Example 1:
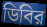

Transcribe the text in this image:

ডিবির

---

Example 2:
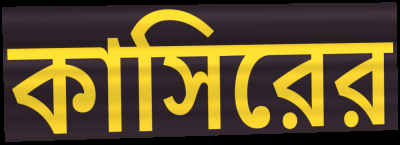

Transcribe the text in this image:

কাসিরের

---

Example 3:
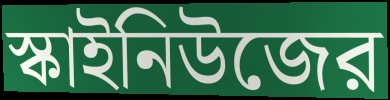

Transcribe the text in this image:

স্কাইনিউজের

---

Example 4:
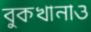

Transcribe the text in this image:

বুকখানাও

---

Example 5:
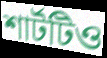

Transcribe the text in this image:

শার্টটিও